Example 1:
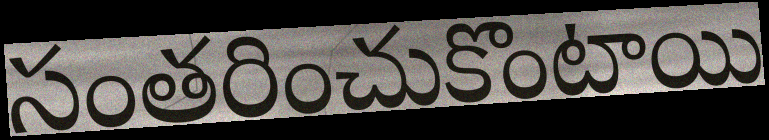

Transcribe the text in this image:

సంతరించుకొంటాయి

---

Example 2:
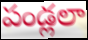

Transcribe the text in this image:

పండ్లలా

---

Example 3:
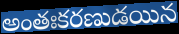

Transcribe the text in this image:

అంతఃకరణుడయిన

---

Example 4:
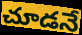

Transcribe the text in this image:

చూడనే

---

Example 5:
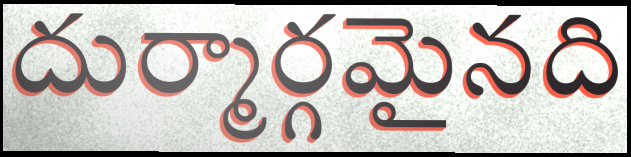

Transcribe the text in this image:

దుర్మార్గమైనది